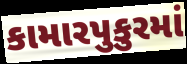
કામારપુકુરમાં